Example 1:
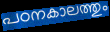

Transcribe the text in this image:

പഠനകാലത്തും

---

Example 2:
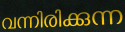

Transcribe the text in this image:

വന്നിരിക്കുന്ന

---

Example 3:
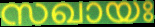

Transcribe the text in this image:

സഖായഃ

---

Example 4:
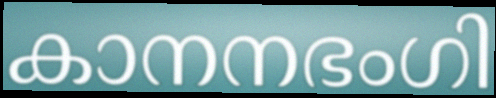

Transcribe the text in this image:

കാനനഭംഗി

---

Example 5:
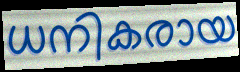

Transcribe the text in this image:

ധനികരായ